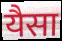
यैसा